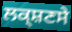
ਲਕ੍ਸ਼ਣਸੇ